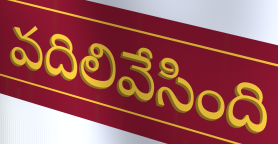
వదిలివేసింది